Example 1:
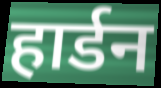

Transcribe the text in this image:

हार्डन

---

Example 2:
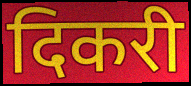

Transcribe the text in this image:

दिकरी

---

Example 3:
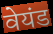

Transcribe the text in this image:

वेयंड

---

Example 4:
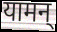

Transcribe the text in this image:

यामन्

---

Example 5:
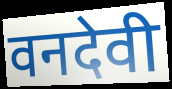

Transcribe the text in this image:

वनदेवी